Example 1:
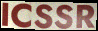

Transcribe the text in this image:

ICSSR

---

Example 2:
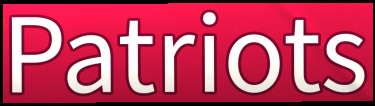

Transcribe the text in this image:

Patriots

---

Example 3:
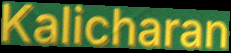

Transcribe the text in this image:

Kalicharan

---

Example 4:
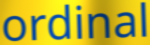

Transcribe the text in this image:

ordinal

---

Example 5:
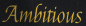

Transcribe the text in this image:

Ambitious